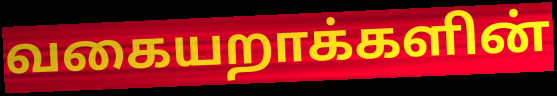
வகையறாக்களின்